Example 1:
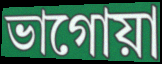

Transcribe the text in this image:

ভাগোয়া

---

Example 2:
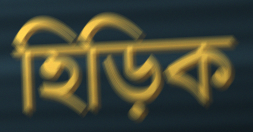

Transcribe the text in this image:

হিড়িক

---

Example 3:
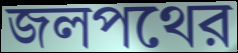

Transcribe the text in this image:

জলপথের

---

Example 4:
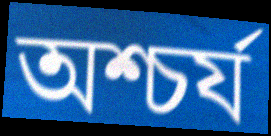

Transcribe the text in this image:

অশ্চর্য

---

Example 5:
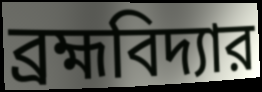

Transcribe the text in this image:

ব্রহ্মবিদ্যার